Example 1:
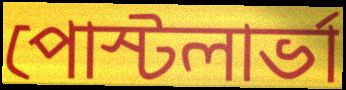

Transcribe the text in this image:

পোস্টলার্ভা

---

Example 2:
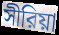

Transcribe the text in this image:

সীরিয়া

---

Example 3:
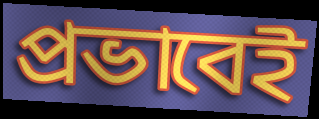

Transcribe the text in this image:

প্রভাবেই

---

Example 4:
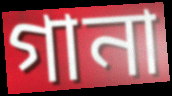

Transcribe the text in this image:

গানা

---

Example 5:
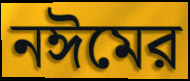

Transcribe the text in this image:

নঈমের